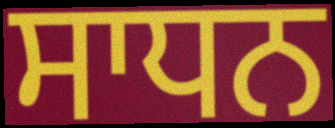
ਸਾਧਨ